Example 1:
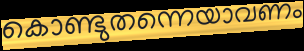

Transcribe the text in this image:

കൊണ്ടുതന്നെയാവണം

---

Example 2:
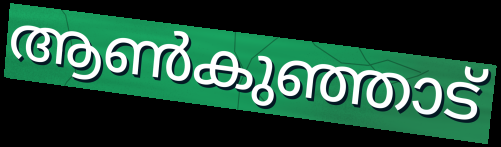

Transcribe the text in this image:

ആൺകുഞ്ഞാട്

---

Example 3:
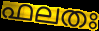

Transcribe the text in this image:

ഫലതഃ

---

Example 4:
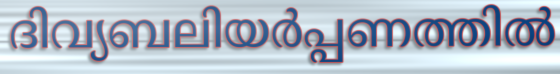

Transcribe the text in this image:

ദിവ്യബലിയർപ്പണത്തിൽ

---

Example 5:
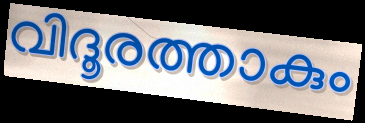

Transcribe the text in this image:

വിദൂരത്താകും